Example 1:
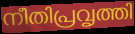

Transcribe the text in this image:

നീതിപ്രവൃത്തി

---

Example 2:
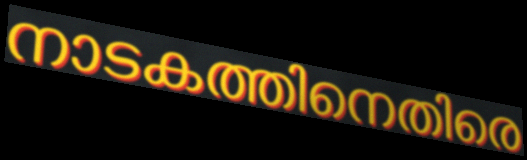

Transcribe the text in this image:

നാടകത്തിനെതിരെ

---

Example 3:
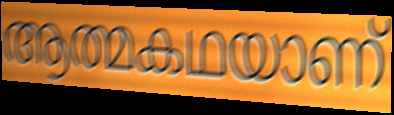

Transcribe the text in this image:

ആത്മകഥയാണ്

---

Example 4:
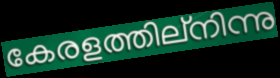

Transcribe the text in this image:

കേരളത്തില്നിന്നു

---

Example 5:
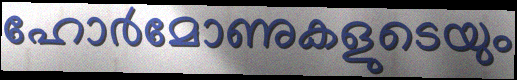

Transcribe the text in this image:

ഹോർമോണുകളുടെയും